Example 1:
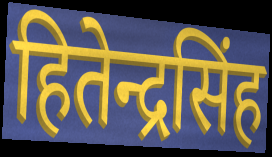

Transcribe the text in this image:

हितेन्द्रसिंह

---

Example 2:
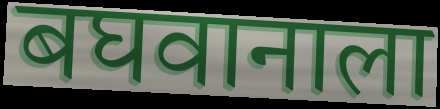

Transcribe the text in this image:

बघवानाला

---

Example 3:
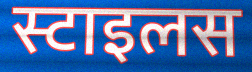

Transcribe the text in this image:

स्टाइलस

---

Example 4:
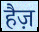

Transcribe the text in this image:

हैज़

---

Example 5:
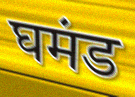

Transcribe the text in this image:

घमंड